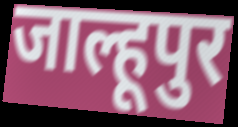
जाल्हूपुर